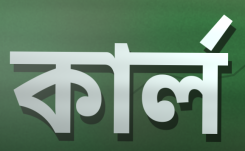
কার্ল